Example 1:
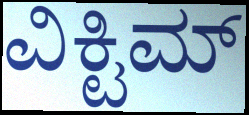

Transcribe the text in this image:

ವಿಕ್ಟಿಮ್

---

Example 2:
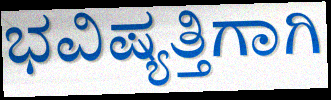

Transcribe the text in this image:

ಭವಿಷ್ಯತ್ತಿಗಾಗಿ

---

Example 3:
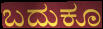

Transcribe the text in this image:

ಬದುಕೂ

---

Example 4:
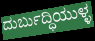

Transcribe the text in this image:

ದುರ್ಬುದ್ಧಿಯುಳ್ಳ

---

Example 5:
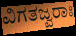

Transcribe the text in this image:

ವಿಗತಜ್ವರಾಃ